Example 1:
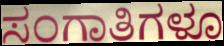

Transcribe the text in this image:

ಸಂಗಾತಿಗಳೂ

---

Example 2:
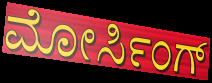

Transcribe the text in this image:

ಮೋರ್ಸಿಂಗ್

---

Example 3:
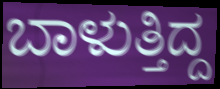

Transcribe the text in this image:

ಬಾಳುತ್ತಿದ್ದ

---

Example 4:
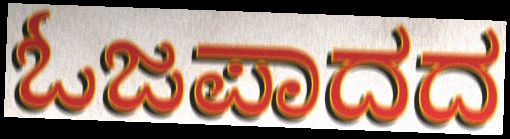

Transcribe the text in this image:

ಓಜಪಾದದ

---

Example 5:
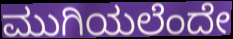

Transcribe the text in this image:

ಮುಗಿಯಲೆಂದೇ